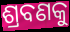
ଶ୍ରବଣକୁ